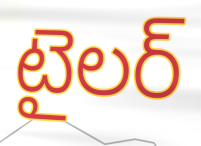
టైలర్